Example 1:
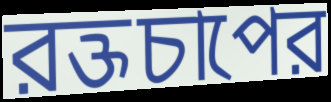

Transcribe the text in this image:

রক্তচাপের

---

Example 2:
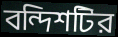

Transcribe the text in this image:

বন্দিশটির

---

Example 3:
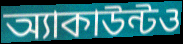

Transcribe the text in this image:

অ্যাকাউন্টও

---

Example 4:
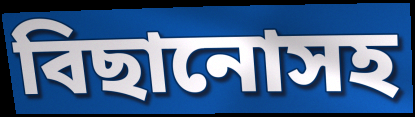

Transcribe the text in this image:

বিছানোসহ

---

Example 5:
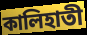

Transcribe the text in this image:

কালিহাতী